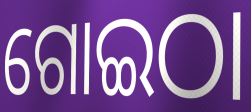
ଗୋଇଠା